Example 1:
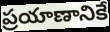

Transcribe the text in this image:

ప్రయాణానికే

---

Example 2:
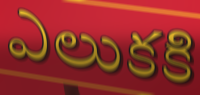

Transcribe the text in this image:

ఎలుకకి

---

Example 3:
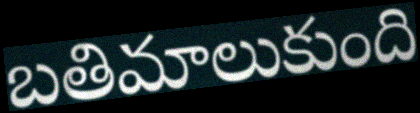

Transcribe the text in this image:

బతిమాలుకుంది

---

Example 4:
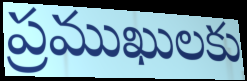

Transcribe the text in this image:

ప్రముఖులకు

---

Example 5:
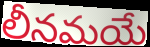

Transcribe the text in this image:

లీనమయే